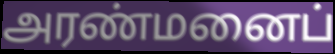
அரண்மனைப்